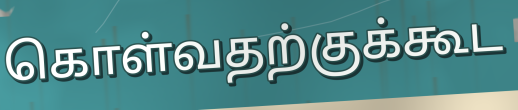
கொள்வதற்குக்கூட